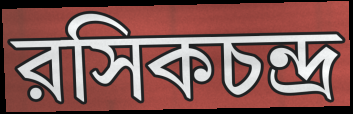
রসিকচন্দ্র